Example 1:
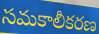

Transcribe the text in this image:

సమకాలీకరణ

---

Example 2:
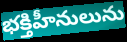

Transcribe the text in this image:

భక్తిహీనులును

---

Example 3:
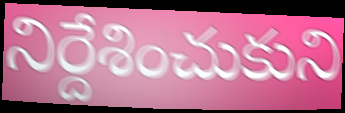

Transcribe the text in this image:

నిర్దేశించుకుని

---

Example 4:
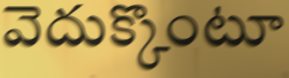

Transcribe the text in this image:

వెదుక్కొంటూ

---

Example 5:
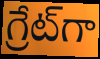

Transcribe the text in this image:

గ్రేట్‌గా